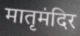
मातृमंदिर